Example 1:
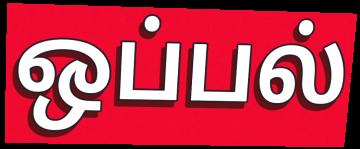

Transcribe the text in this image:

ஒப்பல்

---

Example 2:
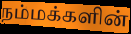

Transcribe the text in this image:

நம்மக்களின்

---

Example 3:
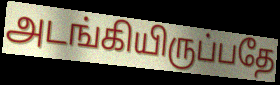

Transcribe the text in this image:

அடங்கியிருப்பதே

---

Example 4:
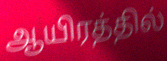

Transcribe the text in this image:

ஆயிரத்தில்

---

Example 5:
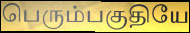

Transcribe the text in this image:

பெரும்பகுதியே